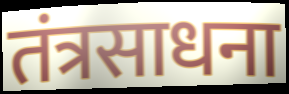
तंत्रसाधना